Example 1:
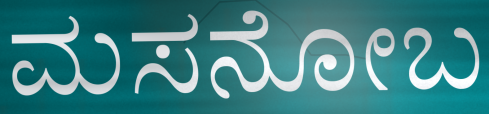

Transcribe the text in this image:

ಮಸನೋಬ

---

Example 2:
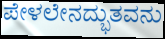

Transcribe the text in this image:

ಪೇಳಲೇನದ್ಭುತವನು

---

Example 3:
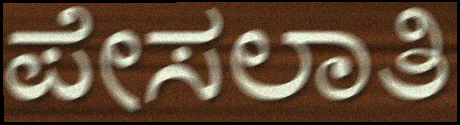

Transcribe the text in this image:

ಪೇಸಲಾತಿ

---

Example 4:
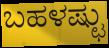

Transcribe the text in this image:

ಬಹಳಷ್ಟು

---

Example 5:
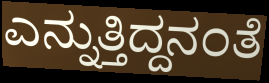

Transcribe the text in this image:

ಎನ್ನುತ್ತಿದ್ದನಂತೆ